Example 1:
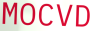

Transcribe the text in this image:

MOCVD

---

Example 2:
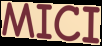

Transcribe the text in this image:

MICI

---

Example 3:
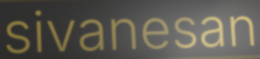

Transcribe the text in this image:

sivanesan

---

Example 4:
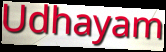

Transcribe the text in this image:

Udhayam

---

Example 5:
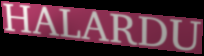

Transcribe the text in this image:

HALARDU